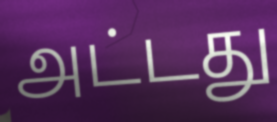
அட்டது